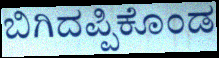
ಬಿಗಿದಪ್ಪಿಕೊಂಡ